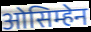
ओसिम्हेन